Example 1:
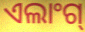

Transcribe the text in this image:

ଏଲାଂଗ୍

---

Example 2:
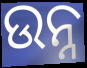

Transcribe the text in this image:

ଉନ୍ନ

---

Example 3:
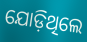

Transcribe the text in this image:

ଯୋଡ଼ିଥିଲେ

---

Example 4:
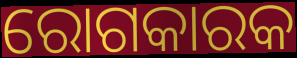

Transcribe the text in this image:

ରୋଗକାରକ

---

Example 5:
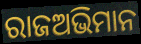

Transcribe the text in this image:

ରାଜଅଭିମାନ